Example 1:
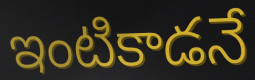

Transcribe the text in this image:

ఇంటికాడనే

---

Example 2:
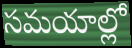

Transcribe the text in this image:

సమయాల్లో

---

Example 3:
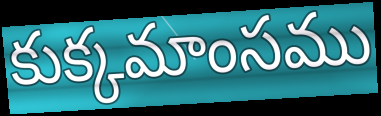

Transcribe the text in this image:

కుక్కమాంసము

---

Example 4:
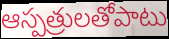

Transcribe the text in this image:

ఆస్పత్రులతోపాటు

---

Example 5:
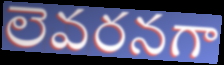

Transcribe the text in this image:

లెవరనగా